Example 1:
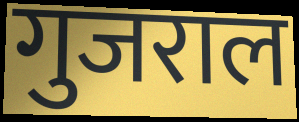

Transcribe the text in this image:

गुजराल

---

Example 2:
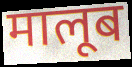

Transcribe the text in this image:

मालूब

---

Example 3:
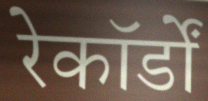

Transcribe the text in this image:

रेकॉर्डों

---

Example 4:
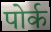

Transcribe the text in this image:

पोर्क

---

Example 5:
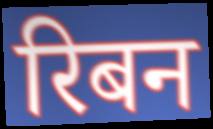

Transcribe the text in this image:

रिबन